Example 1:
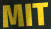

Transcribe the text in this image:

MIT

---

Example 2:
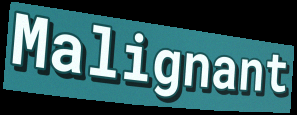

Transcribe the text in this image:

Malignant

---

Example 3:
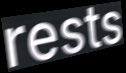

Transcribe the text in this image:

rests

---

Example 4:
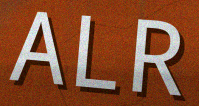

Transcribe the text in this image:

ALR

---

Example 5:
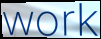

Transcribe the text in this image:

work